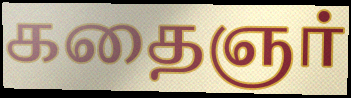
கதைஞர்